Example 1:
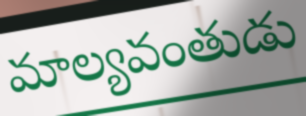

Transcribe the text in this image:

మాల్యవంతుడు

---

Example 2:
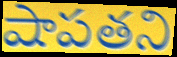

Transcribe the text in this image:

షాపతని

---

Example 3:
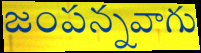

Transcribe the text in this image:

జంపన్నవాగు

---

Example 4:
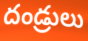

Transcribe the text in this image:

దండ్రులు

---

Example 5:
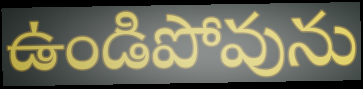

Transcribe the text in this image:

ఉండిపోవును